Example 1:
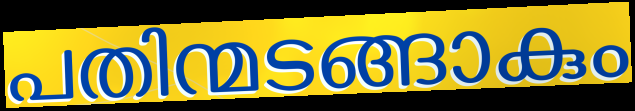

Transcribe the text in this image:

പതിന്മടങ്ങാകും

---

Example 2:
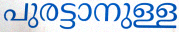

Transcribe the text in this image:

പുരട്ടാനുള്ള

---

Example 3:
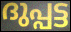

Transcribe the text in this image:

ദുപ്പട്ട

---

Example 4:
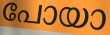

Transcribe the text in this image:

പോയാ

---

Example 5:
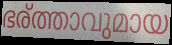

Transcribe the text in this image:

ഭര്ത്താവുമായ